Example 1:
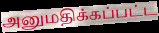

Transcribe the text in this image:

அனுமதிக்கப்பட்ட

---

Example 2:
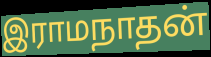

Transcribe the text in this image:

இராமநாதன்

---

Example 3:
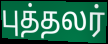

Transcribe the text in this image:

புத்தலர்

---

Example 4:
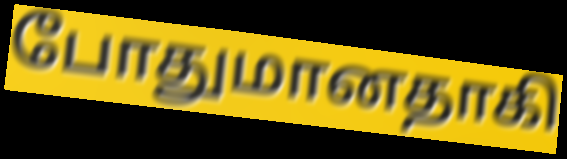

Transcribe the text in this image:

போதுமானதாகி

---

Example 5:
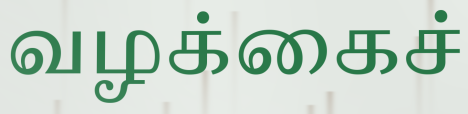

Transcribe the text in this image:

வழக்கைச்